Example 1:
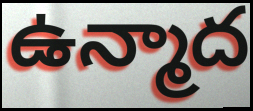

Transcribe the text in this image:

ఉన్మాద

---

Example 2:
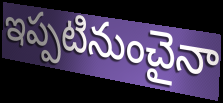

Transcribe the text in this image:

ఇప్పటినుంచైనా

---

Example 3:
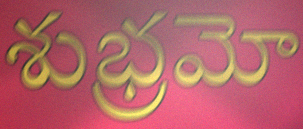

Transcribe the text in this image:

శుభ్రమో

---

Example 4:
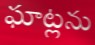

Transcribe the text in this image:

ఘాట్లను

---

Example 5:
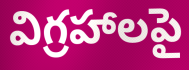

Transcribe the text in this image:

విగ్రహాలపై